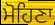
ਮੋਹਿਣਾ